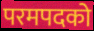
परमपदको